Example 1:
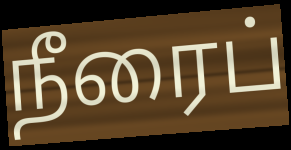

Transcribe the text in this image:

நீரைப்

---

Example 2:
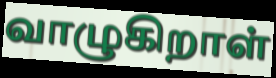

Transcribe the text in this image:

வாழுகிறாள்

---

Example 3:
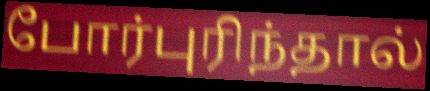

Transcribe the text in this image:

போர்புரிந்தால்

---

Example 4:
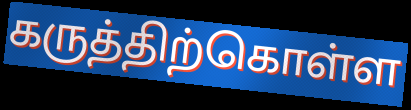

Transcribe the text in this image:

கருத்திற்கொள்ள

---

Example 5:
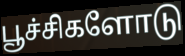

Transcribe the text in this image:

பூச்சிகளோடு